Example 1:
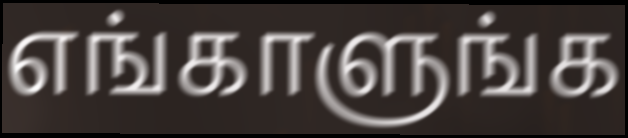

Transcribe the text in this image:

எங்காளுங்க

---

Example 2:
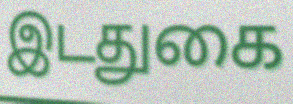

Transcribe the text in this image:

இடதுகை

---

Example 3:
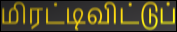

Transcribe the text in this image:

மிரட்டிவிட்டுப்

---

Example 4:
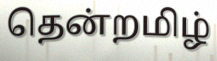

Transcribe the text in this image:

தென்றமிழ்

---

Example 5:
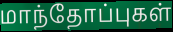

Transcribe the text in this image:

மாந்தோப்புகள்